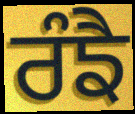
ਰੰਙੈ